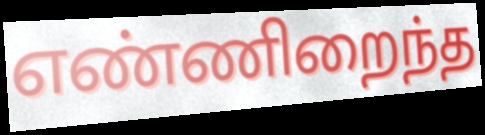
எண்ணிறைந்த